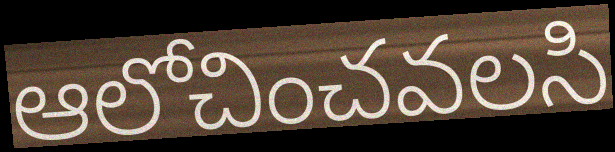
ఆలోచించవలసి